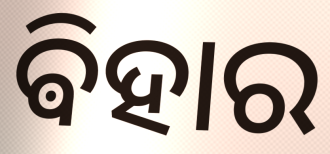
ଵିହାର